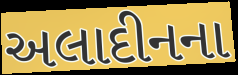
અલાદીનના